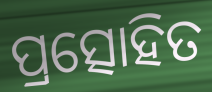
ପ୍ରତ୍ସୋହିତ